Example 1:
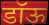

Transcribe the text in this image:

डॉऊ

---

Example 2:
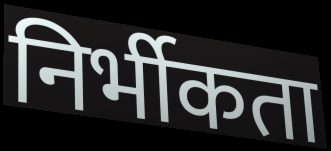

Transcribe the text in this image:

निर्भीकता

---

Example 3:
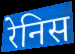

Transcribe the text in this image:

रेनिस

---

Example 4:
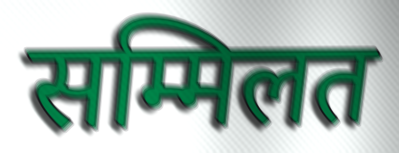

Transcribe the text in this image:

सम्मिलत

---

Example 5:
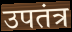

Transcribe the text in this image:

उपतंत्र